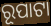
ରୂପାଟା